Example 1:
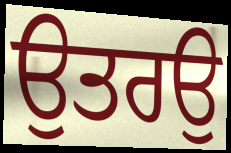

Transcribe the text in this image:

ਉਤਰਉ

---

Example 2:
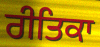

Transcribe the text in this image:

ਰੀਤਿਕਾ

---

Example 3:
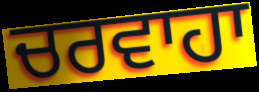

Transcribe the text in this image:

ਚਰਵਾਹਾ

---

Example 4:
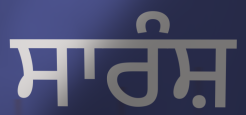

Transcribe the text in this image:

ਸਾਰੰਸ਼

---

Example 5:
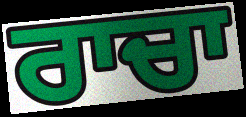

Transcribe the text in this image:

ਰਾਚਾ